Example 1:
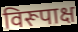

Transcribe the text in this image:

विरूपाक्ष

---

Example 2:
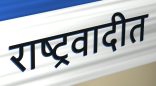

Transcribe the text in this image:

राष्ट्रवादीत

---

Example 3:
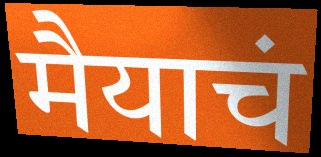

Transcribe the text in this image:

मैयाचं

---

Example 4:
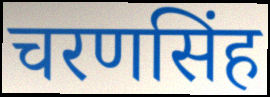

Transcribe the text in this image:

चरणसिंह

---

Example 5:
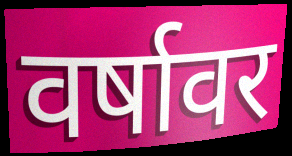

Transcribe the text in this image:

वर्षावर